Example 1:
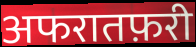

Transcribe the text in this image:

अफरातफ़री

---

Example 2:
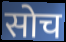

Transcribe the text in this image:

सोच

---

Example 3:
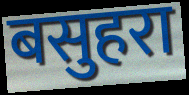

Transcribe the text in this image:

बसुहरा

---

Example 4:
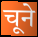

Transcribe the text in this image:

चूने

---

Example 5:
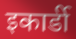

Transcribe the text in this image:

इकार्डी